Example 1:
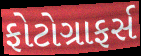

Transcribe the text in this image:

ફોટોગ્રાફર્સ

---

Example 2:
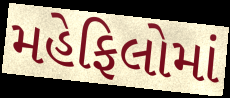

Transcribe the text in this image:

મહેફિલોમાં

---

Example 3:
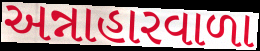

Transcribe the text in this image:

અન્નાહારવાળા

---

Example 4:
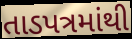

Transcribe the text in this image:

તાડપત્રમાંથી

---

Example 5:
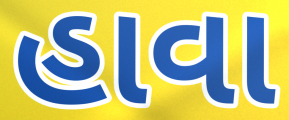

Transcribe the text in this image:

હાવા